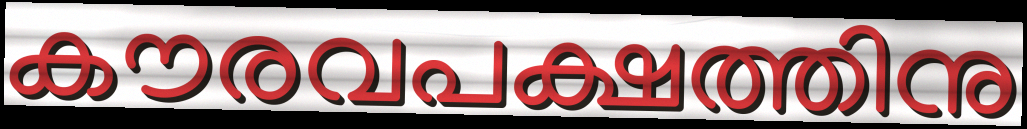
കൗരവപക്ഷത്തിനു